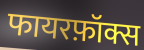
फायरफ़ॉक्स